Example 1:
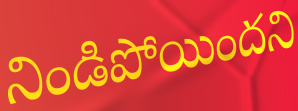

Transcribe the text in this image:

నిండిపోయిందని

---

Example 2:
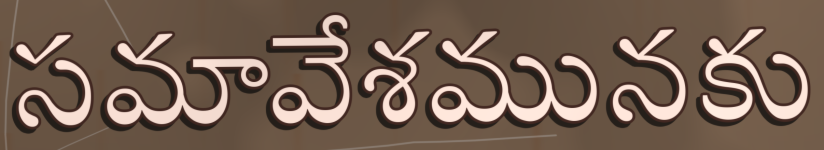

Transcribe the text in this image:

సమావేశమునకు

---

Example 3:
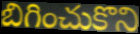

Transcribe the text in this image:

బిగించుకొని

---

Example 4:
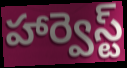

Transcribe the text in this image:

హార్వెస్ట్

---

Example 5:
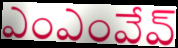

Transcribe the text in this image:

ఎంఎంవేవ్